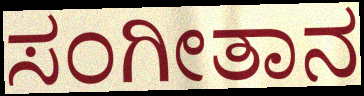
ಸಂಗೀತಾನ